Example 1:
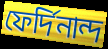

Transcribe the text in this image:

ফের্দিনান্দ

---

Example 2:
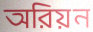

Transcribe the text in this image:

অরিয়ন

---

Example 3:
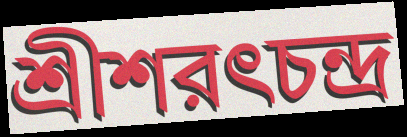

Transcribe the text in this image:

শ্রীশরৎচন্দ্র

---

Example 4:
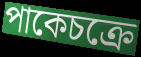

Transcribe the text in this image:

পাকেচক্রে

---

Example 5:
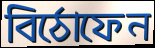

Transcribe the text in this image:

বিঠোফেন